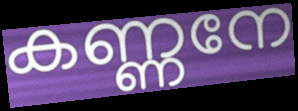
കണ്ണനേ